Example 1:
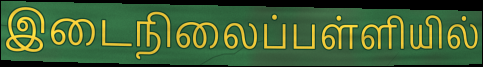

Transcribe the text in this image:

இடைநிலைப்பள்ளியில்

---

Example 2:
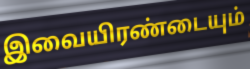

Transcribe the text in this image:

இவையிரண்டையும்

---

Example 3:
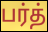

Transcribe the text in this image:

பர்த்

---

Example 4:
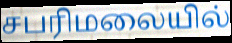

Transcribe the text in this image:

சபரிமலையில்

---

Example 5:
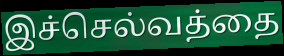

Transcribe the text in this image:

இச்செல்வத்தை